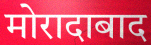
मोरादाबाद